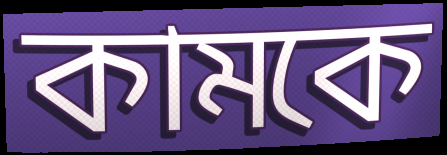
কামকে